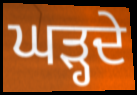
ਘੜ੍ਹਦੇ